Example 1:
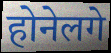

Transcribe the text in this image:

होनेलगे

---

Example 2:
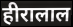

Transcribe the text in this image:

हीरालाल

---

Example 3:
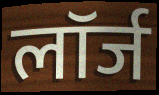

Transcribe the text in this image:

लॉर्ज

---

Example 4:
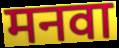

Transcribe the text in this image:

मनवा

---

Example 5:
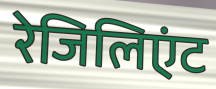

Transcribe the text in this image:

रेजिलिएंट